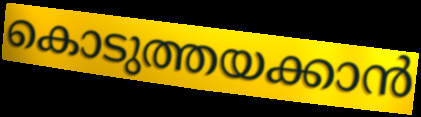
കൊടുത്തയക്കാൻ